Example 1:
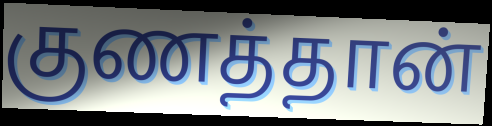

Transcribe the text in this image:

குணத்தான்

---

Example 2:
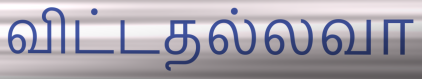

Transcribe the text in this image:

விட்டதல்லவா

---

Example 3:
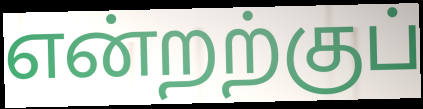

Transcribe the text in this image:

என்றற்குப்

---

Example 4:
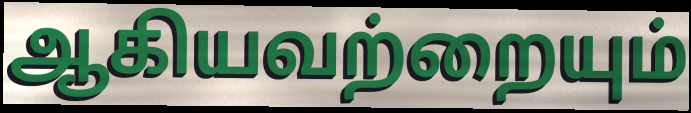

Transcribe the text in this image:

ஆகியவற்றையும்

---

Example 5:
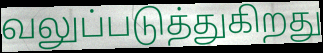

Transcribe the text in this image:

வலுப்படுத்துகிறது